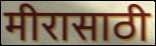
मीरासाठी